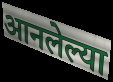
आनलेल्या